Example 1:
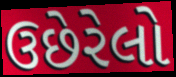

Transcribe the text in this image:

ઉછેરેલો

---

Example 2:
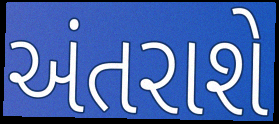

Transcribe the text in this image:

અંતરાશે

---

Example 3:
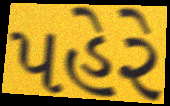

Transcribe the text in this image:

પહેરે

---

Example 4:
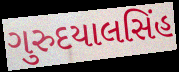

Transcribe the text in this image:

ગુરુદયાલસિંહ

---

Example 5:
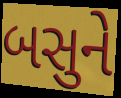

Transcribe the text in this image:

બસુને